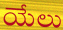
యేలు